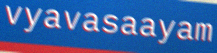
vyavasaayam